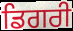
ਡਿਗਰੀ